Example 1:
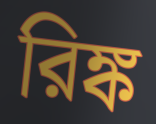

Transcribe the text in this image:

রিঙ্ক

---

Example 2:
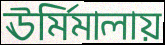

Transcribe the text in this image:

ঊর্মিমালায়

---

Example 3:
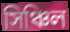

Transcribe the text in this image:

সিঞ্চিল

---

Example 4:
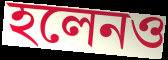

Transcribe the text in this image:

হলেনও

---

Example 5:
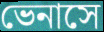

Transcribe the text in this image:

ভেনাসে